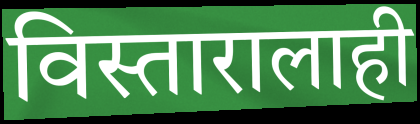
विस्तारालाही